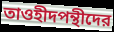
তাওহীদপন্থীদের